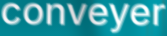
conveyer